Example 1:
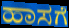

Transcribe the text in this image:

ಹಾಸಗೆ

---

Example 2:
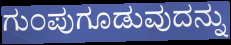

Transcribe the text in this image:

ಗುಂಪುಗೂಡುವುದನ್ನು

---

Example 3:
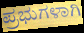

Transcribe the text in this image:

ಪ್ರಭುಗಳಾಗಿ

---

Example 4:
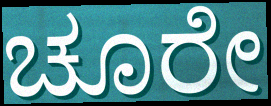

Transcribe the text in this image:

ಚೂರೇ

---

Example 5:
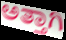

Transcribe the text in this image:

ಅತ್ತಾಗಿ